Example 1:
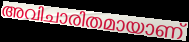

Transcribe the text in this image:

അവിചാരിതമായാണ്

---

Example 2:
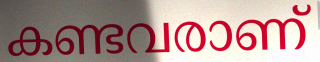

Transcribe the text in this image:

കണ്ടവരാണ്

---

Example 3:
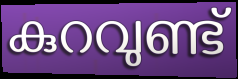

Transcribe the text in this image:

കുറവുണ്ട്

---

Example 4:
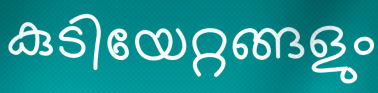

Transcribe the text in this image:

കുടിയേറ്റങ്ങളും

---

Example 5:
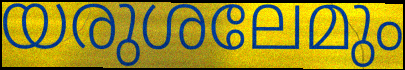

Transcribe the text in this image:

യരുശലേമും